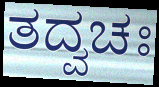
ತದ್ವಚಃ